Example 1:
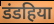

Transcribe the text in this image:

डंडहिया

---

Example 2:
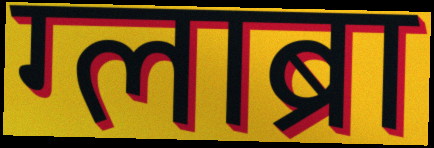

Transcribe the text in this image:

ग्लाब्रा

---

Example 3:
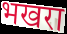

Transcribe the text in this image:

भखरा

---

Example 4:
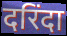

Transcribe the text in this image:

दरिंदा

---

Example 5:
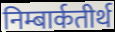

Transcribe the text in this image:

निम्बार्कतीर्थ